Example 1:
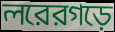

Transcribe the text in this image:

লরেরগড়ে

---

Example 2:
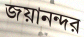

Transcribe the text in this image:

জয়ানন্দর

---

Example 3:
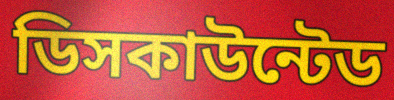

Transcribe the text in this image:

ডিসকাউন্টেড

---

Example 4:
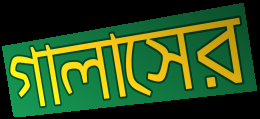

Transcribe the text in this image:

গালাসের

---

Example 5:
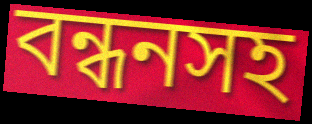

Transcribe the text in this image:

বন্ধনসহ